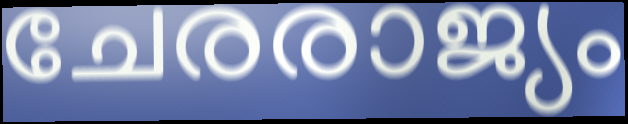
ചേരരാജ്യം